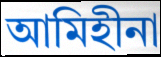
আমিহীনা